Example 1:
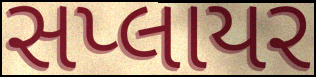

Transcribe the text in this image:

સપ્લાયર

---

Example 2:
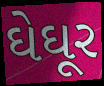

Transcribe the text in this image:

ઘેઘૂર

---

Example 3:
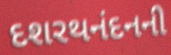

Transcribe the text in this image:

દશરથનંદનની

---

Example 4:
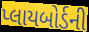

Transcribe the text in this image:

પ્લાયબોર્ડની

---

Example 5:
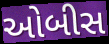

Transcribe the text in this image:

ઓબીસ